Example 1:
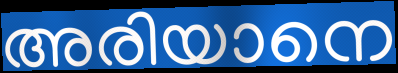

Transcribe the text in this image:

അരിയാനെ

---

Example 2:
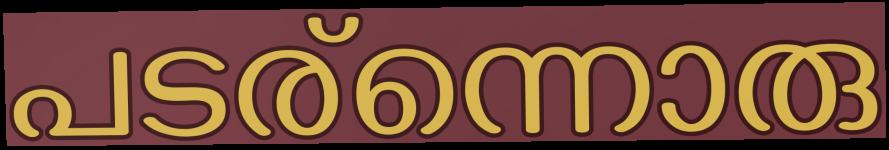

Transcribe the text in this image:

പടര്ന്നൊരു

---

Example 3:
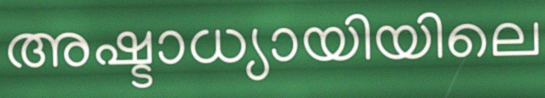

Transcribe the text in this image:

അഷ്ടാധ്യായിയിലെ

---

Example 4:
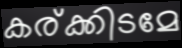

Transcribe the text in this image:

കര്ക്കിടമേ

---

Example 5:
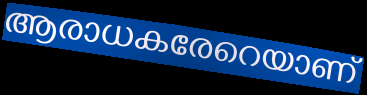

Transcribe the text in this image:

ആരാധകരേറെയാണ്